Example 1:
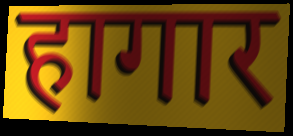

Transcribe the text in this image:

हागार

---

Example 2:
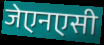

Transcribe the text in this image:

जेएनएसी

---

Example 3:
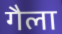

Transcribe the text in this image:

गैला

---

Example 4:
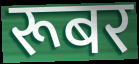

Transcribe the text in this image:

रूबर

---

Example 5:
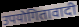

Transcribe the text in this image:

उपयोगितावादी